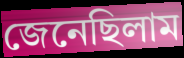
জেনেছিলাম